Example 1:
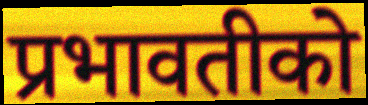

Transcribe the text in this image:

प्रभावतीको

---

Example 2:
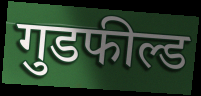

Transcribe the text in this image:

गुडफील्ड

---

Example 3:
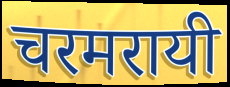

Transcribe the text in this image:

चरमरायी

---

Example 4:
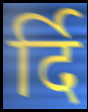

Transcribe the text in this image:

र्दि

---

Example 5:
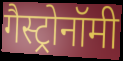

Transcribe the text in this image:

गैस्ट्रोनॉमी